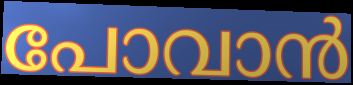
പോവാൻ